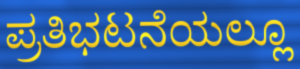
ಪ್ರತಿಭಟನೆಯಲ್ಲೂ